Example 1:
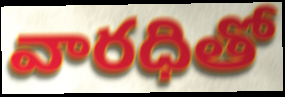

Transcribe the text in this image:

వారధితో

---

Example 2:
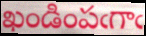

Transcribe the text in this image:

ఖండింపఁగాఁ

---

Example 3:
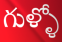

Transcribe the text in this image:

గుళ్ళో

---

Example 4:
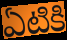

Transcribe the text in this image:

ఏటికి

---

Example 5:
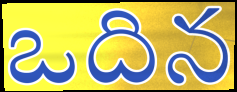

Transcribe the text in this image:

ఒదిన